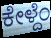
ಕೇಳ್ದೆಂ